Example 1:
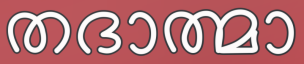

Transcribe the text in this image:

തദാത്മാ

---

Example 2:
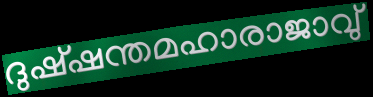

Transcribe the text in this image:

ദുഷ്ഷന്തമഹാരാജാവു്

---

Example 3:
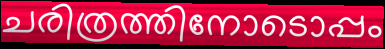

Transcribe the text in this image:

ചരിത്രത്തിനോടൊപ്പം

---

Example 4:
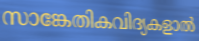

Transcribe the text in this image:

സാങ്കേതികവിദ്യകളാൽ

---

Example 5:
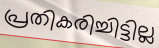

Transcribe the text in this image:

പ്രതികരിച്ചിട്ടില്ല